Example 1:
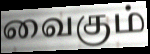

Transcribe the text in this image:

வைகும்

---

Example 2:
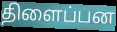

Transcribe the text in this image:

திளைப்பன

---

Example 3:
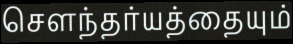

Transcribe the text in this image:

சௌந்தர்யத்தையும்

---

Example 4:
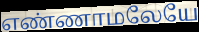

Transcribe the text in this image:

எண்ணாமலேயே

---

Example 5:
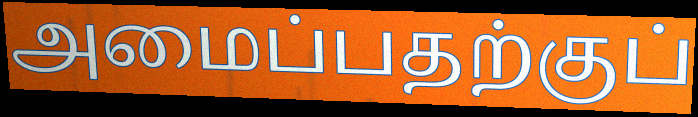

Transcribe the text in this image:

அமைப்பதற்குப்